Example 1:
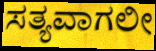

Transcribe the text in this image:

ಸತ್ಯವಾಗಲೀ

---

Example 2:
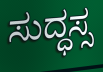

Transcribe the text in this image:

ಸುದ್ಧಸ್ಸ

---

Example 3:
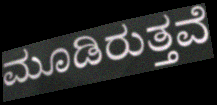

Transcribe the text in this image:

ಮೂಡಿರುತ್ತವೆ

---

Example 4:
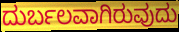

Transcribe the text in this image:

ದುರ್ಬಲವಾಗಿರುವುದು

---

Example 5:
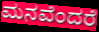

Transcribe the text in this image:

ಮನವೆಂದರೆ